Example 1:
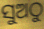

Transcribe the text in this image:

ସୁଅଠୁ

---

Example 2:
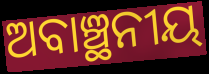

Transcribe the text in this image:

ଅବାଞ୍ଛନୀୟ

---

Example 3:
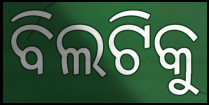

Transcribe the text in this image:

ବିଲଟିକୁ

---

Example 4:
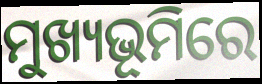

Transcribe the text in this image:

ମୁଖ୍ୟଭୂମିରେ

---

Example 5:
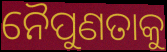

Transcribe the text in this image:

ନୈପୁଣତାକୁ